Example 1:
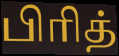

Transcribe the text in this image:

பிரித்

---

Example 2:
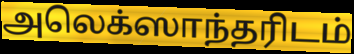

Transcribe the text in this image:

அலெக்ஸாந்தரிடம்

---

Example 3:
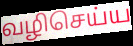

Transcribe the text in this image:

வழிசெய்ய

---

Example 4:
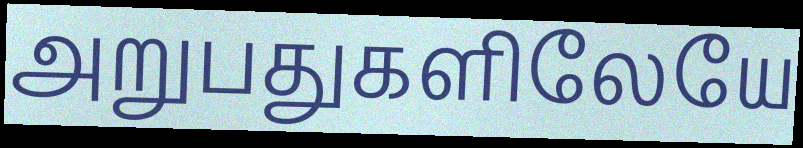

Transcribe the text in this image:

அறுபதுகளிலேயே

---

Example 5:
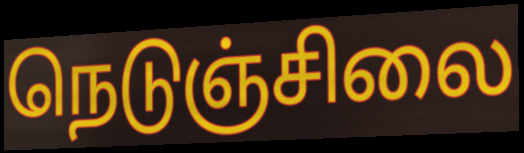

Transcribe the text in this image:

நெடுஞ்சிலை